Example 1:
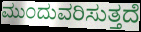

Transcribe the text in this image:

ಮುಂದುವರಿಸುತ್ತದೆ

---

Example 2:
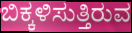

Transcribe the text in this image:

ಬಿಕ್ಕಳಿಸುತ್ತಿರುವ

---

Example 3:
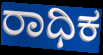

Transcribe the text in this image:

ರಾಧಿಕ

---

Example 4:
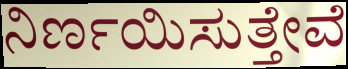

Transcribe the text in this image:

ನಿರ್ಣಯಿಸುತ್ತೇವೆ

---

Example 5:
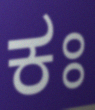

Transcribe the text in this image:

ಕಃ